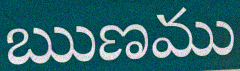
ఋణము